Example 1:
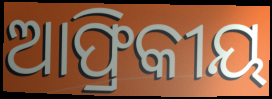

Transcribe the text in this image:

ଆଫ୍ରିକୀୟ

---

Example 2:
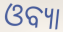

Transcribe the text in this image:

ଓବ୍ୟା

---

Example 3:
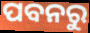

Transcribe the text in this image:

ପବନରୁ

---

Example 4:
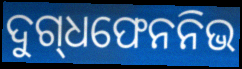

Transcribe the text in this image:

ଦୁଗ୍‍ଧଫେନନିଭ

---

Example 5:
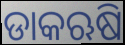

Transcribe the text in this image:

ଡାକଋଷି